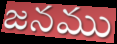
జనము